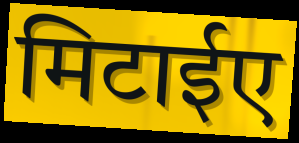
मिटाईए